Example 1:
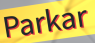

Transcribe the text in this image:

Parkar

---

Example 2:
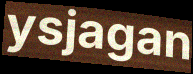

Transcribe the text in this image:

ysjagan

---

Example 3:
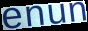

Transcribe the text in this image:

enun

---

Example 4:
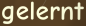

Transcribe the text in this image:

gelernt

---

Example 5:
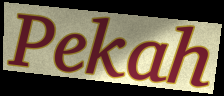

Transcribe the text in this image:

Pekah